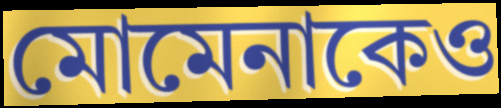
মোমেনাকেও